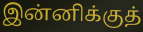
இன்னிக்குத்